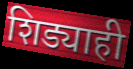
शिड्याही